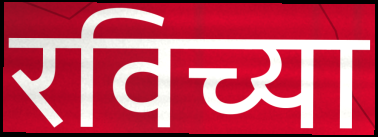
रविच्या